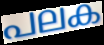
പലക